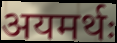
अयमर्थः